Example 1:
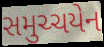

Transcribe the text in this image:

સમુચ્ચયેન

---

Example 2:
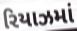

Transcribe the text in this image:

રિયાઝમાં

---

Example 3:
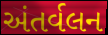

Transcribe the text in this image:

અંતર્વલન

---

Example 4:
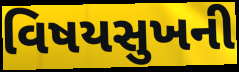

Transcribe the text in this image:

વિષયસુખની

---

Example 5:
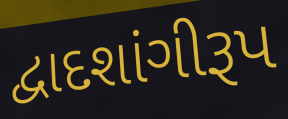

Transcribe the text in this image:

દ્વાદશાંગીરૂપ